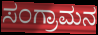
ಸಂಗ್ರಾಮನ